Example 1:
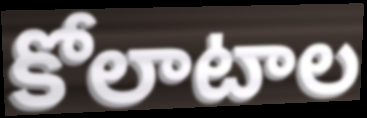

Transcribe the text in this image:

కోలాటాల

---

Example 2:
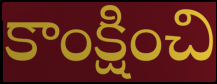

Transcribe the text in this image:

కాంక్షించి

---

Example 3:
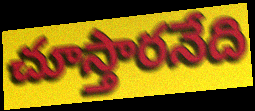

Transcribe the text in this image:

చూస్తారనేది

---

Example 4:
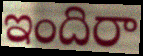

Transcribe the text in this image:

ఇందిరా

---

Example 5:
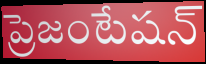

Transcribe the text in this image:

ప్రెజంటేషన్